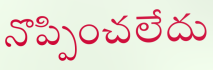
నొప్పించలేదు